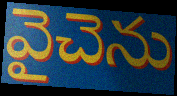
వైచెను